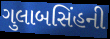
ગુલાબસિંહની